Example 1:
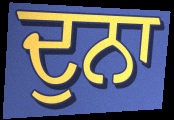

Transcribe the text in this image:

ਦੁਨਾ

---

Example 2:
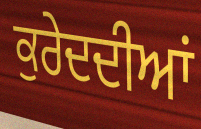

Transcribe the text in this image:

ਕੁਰੇਦਦੀਆਂ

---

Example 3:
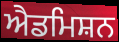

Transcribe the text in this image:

ਐਡਮਿਸ਼ਨ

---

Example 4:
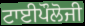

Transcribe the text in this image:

ਟਾਈਪੌਲੋਜੀ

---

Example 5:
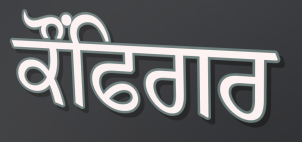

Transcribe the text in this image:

ਕੌਂਫਿਗਰ